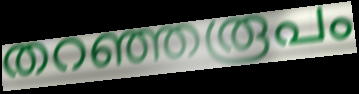
തറഞ്ഞരൂപം